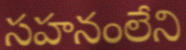
సహనంలేని